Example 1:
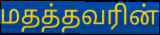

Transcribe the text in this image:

மதத்தவரின்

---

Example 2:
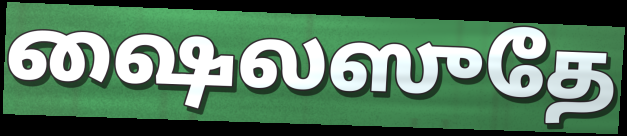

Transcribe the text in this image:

ஷைலஸுதே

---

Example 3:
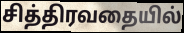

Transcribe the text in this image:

சித்திரவதையில்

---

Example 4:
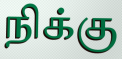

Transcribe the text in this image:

நிக்கு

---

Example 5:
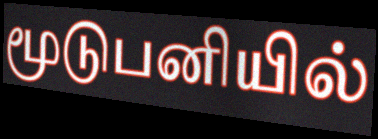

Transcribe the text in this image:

மூடுபனியில்